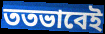
ততভাবেই